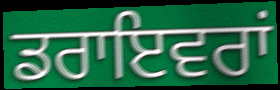
ਡਰਾਇਵਰਾਂ